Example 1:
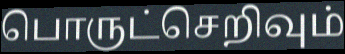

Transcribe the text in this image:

பொருட்செறிவும்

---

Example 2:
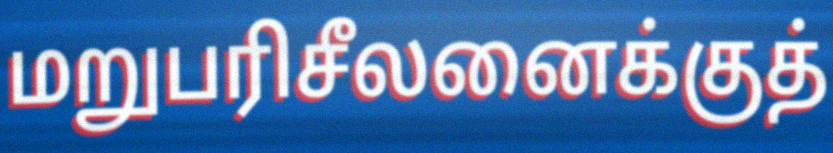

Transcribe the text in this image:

மறுபரிசீலனைக்குத்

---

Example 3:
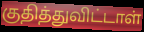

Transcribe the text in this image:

குதித்துவிட்டாள்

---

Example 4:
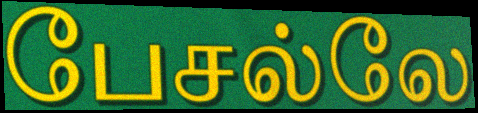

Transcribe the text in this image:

பேசல்லே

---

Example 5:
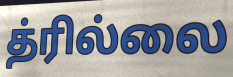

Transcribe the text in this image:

த்ரில்லை